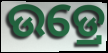
ଉଡ୍ରେ